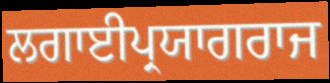
ਲਗਾਈਪ੍ਰਯਾਗਰਾਜ